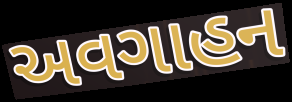
અવગાહન